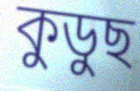
কুডুছ